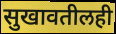
सुखावतीलही